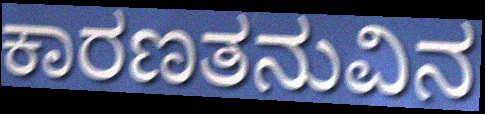
ಕಾರಣತನುವಿನ